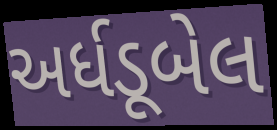
અર્ધડૂબેલ